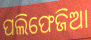
ପଲିଫେଜିଆ